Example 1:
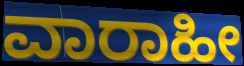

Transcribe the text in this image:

ವಾರಾಹೀ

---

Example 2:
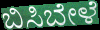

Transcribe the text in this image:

ಬಿಸಿಬೇಳೆ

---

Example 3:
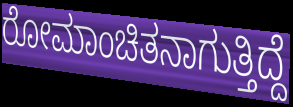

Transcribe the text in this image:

ರೋಮಾಂಚಿತನಾಗುತ್ತಿದ್ದೆ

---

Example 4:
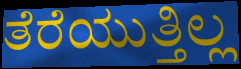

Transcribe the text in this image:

ತೆರೆಯುತ್ತಿಲ್ಲ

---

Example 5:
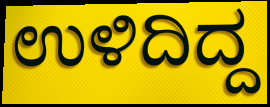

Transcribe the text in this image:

ಉಳಿದಿದ್ದ